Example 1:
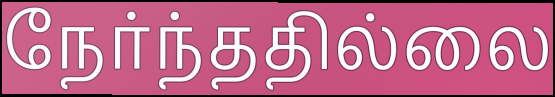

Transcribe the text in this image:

நேர்ந்ததில்லை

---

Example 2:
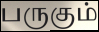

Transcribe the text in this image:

பருகும்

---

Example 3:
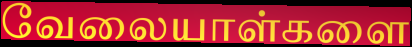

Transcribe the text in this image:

வேலையாள்களை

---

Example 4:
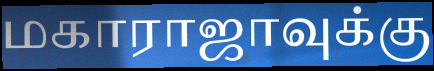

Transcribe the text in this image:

மகாராஜாவுக்கு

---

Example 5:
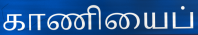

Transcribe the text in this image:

காணியைப்